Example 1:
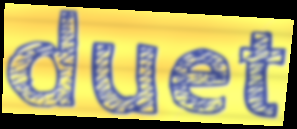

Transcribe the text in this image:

duet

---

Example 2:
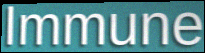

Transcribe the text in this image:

Immune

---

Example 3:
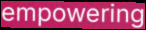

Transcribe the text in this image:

empowering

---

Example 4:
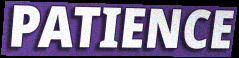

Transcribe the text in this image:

PATIENCE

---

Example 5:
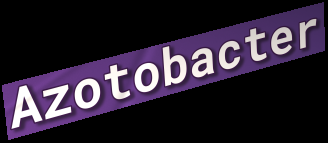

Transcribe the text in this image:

Azotobacter